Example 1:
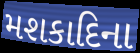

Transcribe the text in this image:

મશકાદિના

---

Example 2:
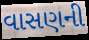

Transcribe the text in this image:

વાસણની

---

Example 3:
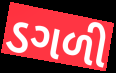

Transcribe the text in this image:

ડગળી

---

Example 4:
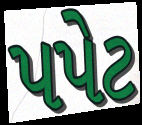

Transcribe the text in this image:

પપેટ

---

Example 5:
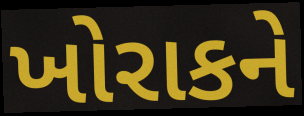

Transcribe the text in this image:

ખોરાકને